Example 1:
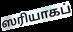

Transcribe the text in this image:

ஸரியாகப்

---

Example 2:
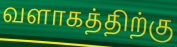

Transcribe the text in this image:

வளாகத்திற்கு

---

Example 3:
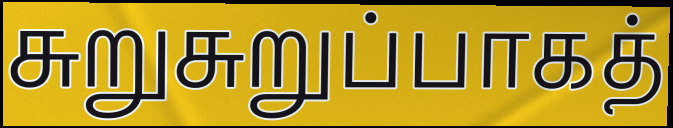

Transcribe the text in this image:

சுறுசுறுப்பாகத்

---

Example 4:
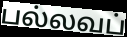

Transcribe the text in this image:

பல்லவப்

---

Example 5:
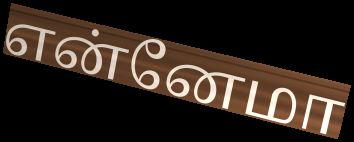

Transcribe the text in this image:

என்னேமா